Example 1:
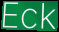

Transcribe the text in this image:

Eck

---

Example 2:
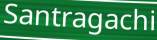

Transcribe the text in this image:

Santragachi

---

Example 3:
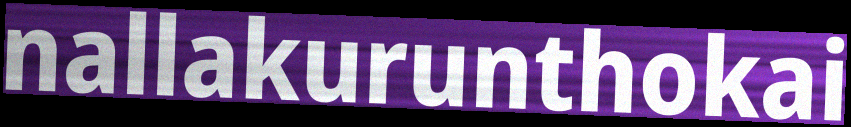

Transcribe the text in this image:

nallakurunthokai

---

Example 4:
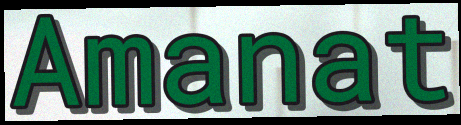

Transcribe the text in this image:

Amanat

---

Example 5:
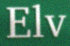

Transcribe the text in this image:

Elv